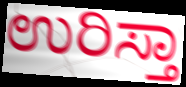
ಉರಿಸ್ತಾ